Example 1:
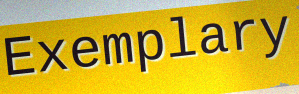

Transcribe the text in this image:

Exemplary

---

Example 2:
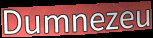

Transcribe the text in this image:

Dumnezeu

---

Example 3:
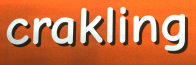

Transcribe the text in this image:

crakling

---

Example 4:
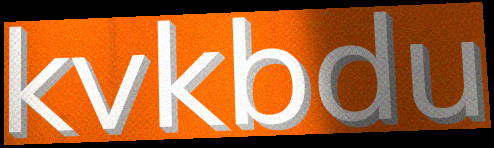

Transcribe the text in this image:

kvkbdu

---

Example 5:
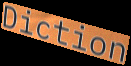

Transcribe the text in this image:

Diction